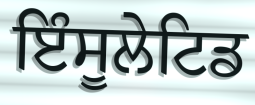
ਇੰਸੂਲੇਟਿਡ